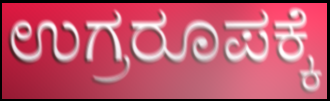
ಉಗ್ರರೂಪಕ್ಕೆ